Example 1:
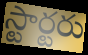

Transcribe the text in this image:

స్టార్టరు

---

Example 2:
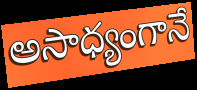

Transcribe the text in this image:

అసాధ్యంగానే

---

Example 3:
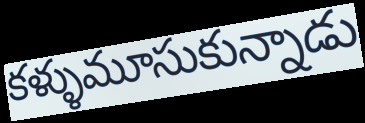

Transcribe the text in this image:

కళ్ళుమూసుకున్నాడు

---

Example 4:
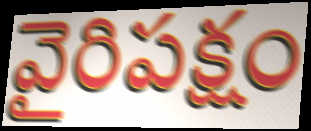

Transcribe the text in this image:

వైరిపక్షం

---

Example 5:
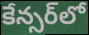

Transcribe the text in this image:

కేన్సర్‌లో